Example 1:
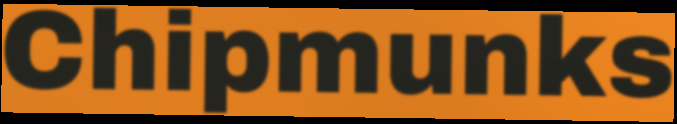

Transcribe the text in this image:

Chipmunks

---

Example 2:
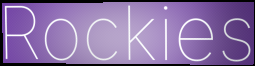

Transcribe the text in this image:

Rockies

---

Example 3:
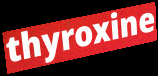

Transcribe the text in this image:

thyroxine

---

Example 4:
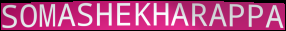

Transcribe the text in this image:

SOMASHEKHARAPPA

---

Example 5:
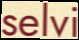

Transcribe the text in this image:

selvi